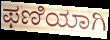
ಫಣಿಯಾಗಿ